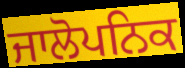
ਜਾਲੋਪਨਿਕ